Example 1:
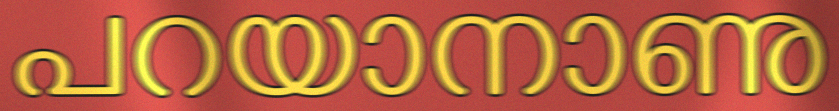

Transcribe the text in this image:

പറയാനാണു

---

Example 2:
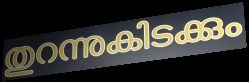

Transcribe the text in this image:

തുറന്നുകിടക്കും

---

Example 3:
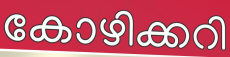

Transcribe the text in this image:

കോഴിക്കറി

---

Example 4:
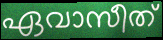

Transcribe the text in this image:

ഏവാസീത്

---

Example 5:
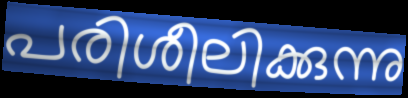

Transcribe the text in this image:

പരിശീലിക്കുന്നു